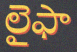
లైఫా